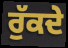
ਰੁੱਕਦੇ